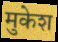
मुकेश